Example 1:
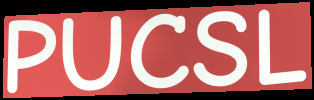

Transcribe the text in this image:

PUCSL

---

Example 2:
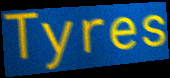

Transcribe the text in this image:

Tyres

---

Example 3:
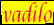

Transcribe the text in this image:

vadilo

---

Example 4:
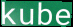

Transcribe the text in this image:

kube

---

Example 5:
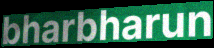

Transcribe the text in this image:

bharbharun